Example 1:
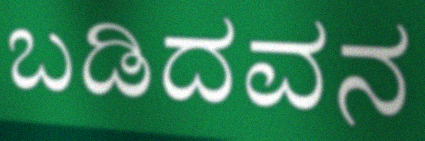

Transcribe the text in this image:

ಬಡಿದವನ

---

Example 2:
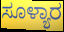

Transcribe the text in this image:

ಸೂಳ್ಯಾರ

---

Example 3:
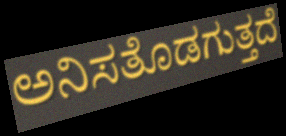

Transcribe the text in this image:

ಅನಿಸತೊಡಗುತ್ತದೆ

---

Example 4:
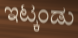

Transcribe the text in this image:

ಇಟ್ಕಂಡು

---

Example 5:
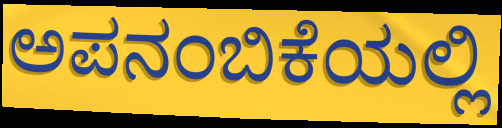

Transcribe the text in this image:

ಅಪನಂಬಿಕೆಯಲ್ಲಿ